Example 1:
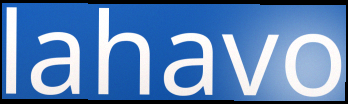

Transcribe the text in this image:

lahavo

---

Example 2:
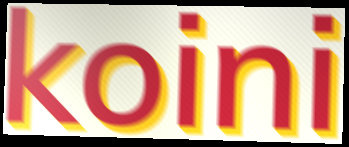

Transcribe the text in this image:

koini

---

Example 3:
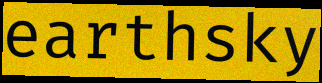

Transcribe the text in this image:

earthsky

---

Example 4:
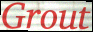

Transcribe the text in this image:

Grout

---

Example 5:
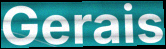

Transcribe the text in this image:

Gerais